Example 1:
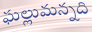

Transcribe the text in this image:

ఘల్లుమన్నది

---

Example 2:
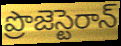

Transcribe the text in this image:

ప్రొజెస్టెరాన్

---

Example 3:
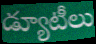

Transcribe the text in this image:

డ్యూటీలు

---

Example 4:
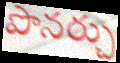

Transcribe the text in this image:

పొనర్చు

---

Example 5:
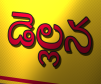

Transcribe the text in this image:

డెల్లన